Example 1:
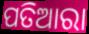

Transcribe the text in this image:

ପତିଆରା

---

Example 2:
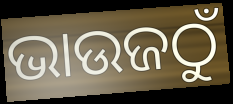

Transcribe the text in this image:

ଭାଉଜଠୁଁ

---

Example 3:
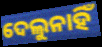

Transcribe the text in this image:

ଦେଲୁନାହିଁ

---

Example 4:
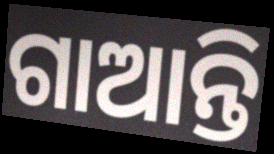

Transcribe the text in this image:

ଗାଆନ୍ତି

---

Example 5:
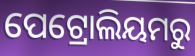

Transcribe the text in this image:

ପେଟ୍ରୋଲିୟମରୁ